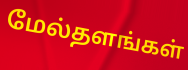
மேல்தளங்கள்